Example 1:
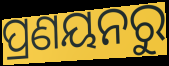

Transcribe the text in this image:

ପ୍ରଣୟନରୁ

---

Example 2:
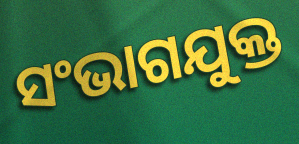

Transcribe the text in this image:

ସଂଭାଗଯୁକ୍ତ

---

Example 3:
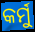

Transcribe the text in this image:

କର୍ମୁ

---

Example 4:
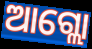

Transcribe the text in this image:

ଆଗ୍ଲୋ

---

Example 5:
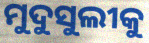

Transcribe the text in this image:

ମୁଦୁସୁଲୀକୁ